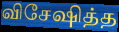
விசேஷித்த